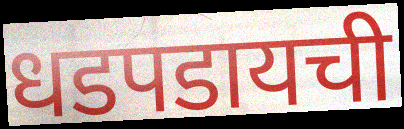
धडपडायची